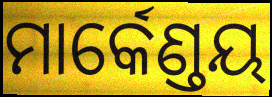
ମାର୍କେଣ୍ଡୟ